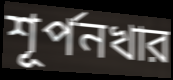
শূর্পনখার